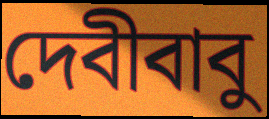
দেবীবাবু